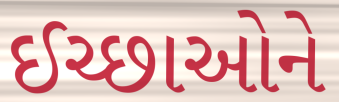
ઈચ્છાઓને